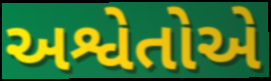
અશ્વેતોએ